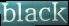
black